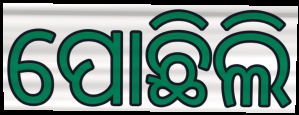
ପୋଛିଲି